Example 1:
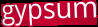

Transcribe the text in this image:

gypsum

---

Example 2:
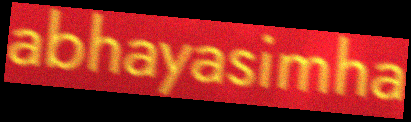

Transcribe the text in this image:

abhayasimha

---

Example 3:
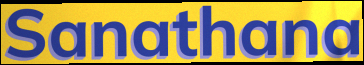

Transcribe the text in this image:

Sanathana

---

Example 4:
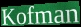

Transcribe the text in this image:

Kofman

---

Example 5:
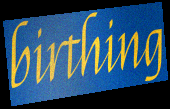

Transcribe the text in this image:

birthing